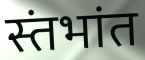
स्तंभांत